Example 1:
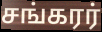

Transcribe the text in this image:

சங்கரர்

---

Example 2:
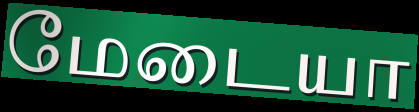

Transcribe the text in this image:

மேடையா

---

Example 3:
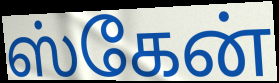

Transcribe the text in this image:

ஸ்கேன்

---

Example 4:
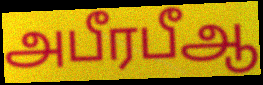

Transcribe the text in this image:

அபீரபீஆ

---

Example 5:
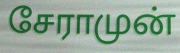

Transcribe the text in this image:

சேராமுன்